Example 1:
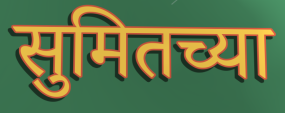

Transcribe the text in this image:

सुमितच्या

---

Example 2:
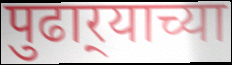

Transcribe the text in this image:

पुढार्याच्या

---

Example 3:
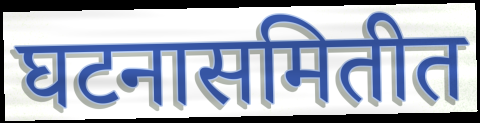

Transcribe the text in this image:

घटनासमितीत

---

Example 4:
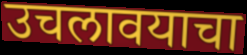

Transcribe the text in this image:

उचलावयाचा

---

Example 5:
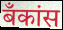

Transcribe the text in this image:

बँकांस